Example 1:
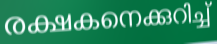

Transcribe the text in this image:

രക്ഷകനെക്കുറിച്ച്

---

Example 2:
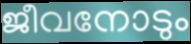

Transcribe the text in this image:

ജീവനോടും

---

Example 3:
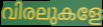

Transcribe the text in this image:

വിരലുകളേ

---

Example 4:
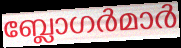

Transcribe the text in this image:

ബ്ലോഗർമാർ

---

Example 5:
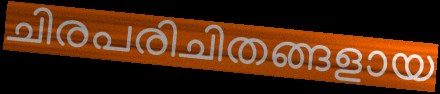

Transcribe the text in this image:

ചിരപരിചിതങ്ങളായ